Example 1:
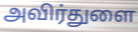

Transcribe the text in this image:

அவிர்துளை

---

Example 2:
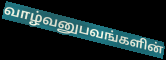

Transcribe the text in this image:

வாழ்வனுபவங்களின்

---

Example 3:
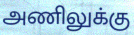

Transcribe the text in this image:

அணிலுக்கு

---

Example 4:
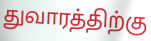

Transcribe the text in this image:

துவாரத்திற்கு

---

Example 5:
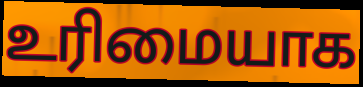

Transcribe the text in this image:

உரிமையாக